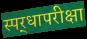
स्पर्धापरीक्षा